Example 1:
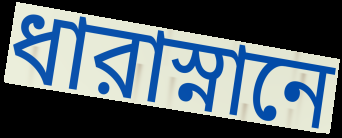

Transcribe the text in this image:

ধারাস্নানে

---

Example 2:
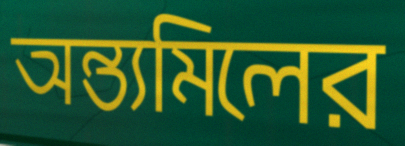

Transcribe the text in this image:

অন্ত্যমিলের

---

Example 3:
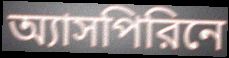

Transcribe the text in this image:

অ্যাসপিরিনে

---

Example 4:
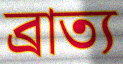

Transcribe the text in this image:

ব্রাত্য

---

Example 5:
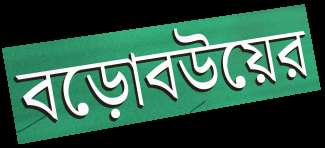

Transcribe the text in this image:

বড়োবউয়ের